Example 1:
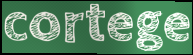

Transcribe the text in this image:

cortege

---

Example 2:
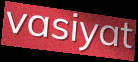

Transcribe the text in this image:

vasiyat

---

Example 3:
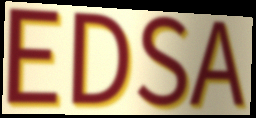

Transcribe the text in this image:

EDSA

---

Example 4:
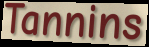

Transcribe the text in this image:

Tannins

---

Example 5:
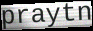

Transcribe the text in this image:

praytn